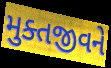
મુક્તજીવને